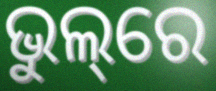
ଭୁଲ୍‌ରେ